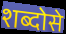
शब्दोसे